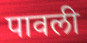
पावली